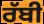
ਰੱਬੀ